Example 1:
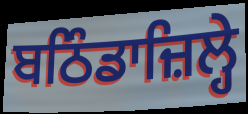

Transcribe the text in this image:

ਬਠਿੰਡਾਜ਼ਿਲ੍ਹੇ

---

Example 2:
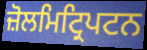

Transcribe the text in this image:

ਜ਼ੋਲਮਿਟ੍ਰਿਪਟਨ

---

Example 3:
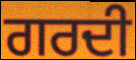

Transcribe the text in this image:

ਗਰਦੀ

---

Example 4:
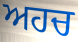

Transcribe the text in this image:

ਅਹਚ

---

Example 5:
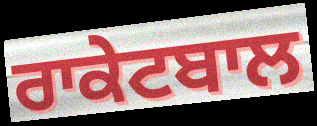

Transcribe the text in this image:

ਰਾਕੇਟਬਾਲ